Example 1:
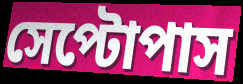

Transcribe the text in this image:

সেপ্টোপাস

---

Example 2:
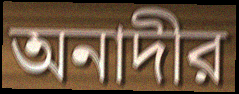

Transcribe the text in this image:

অনাদীর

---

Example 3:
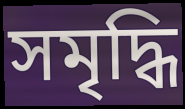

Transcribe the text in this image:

সমৃদ্ধি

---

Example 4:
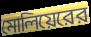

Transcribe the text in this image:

মোলিয়েরের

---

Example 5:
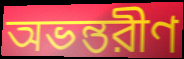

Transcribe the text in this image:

অভন্তরীণ